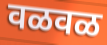
वळवळ